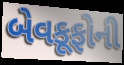
બેવકૂફોની